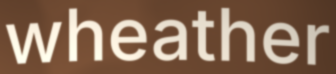
wheather